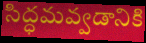
సిద్ధమవ్వడానికి